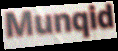
Munqid